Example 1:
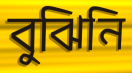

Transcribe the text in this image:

বুঝিনি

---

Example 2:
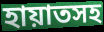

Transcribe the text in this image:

হায়াতসহ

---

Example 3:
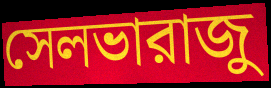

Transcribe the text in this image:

সেলভারাজু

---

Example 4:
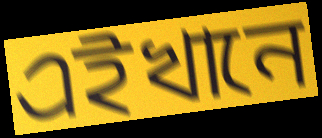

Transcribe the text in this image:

এইখানে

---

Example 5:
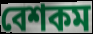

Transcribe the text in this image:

বেশকম